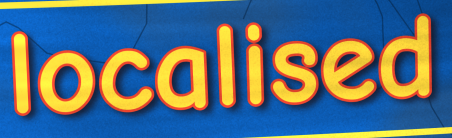
localised